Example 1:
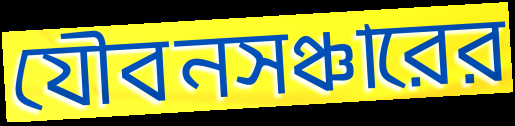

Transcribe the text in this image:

যৌবনসঞ্চারের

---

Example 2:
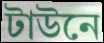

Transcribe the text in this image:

টাউনে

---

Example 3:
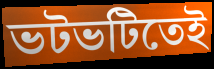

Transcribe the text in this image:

ভটভটিতেই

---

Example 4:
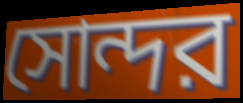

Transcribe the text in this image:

সোন্দর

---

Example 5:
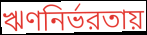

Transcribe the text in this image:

ঋণনির্ভরতায়